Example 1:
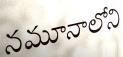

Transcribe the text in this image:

నమూనాలోని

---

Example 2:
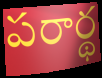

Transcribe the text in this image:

పరార్థ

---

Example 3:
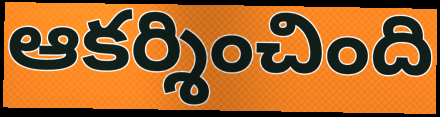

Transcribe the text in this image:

ఆకర్శించింది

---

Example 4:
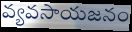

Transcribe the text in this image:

వ్యవసాయజనం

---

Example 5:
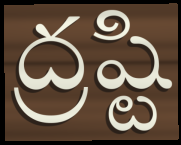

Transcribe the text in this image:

ద్రష్టి